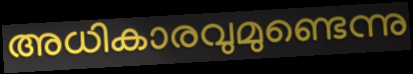
അധികാരവുമുണ്ടെന്നു